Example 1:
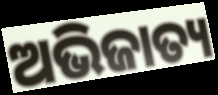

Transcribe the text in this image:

ଅଭିଜାତ୍ୟ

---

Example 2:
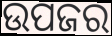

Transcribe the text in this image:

ଉପଜର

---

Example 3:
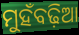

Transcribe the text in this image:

ମୁହଁବଢ଼ିଆ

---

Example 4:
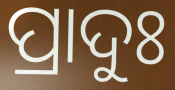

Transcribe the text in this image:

ପ୍ରାଦୁଃ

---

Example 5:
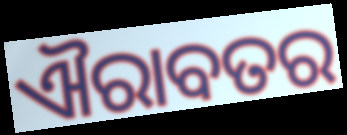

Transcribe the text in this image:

ଐରାବତର